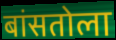
बांसतोला